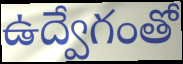
ఉద్వేగంతో